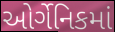
ઓર્ગેનિકમાં